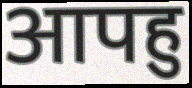
आपहु